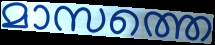
മാസത്തെ